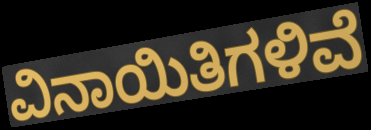
ವಿನಾಯಿತಿಗಳಿವೆ